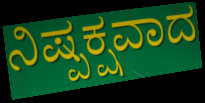
ನಿಷ್ಪಕ್ಷವಾದ